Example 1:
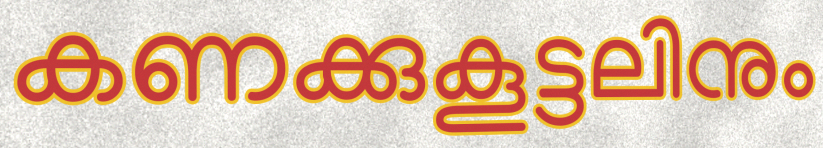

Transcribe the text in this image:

കണക്കുകൂട്ടലിനും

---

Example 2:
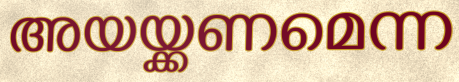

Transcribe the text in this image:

അയയ്ക്കണമെന്ന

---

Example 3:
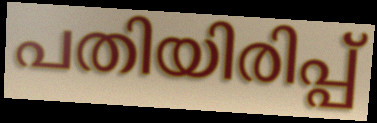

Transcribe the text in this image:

പതിയിരിപ്പ്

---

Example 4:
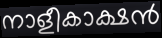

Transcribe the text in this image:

നാളീകാക്ഷൻ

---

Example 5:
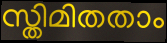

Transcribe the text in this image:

സ്തിമിതതാം